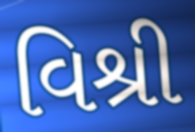
વિશ્રી